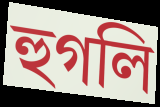
হুগলি